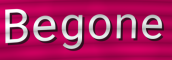
Begone